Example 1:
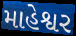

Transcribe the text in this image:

માહેશ્વર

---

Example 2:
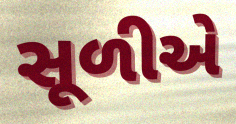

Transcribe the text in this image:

સૂળીએ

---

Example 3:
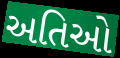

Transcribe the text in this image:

અતિઓ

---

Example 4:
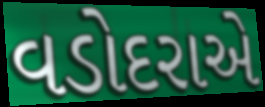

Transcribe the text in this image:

વડોદરાએ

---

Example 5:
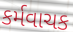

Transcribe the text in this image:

કર્મવાચક